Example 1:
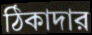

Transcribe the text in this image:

ঠিকাদার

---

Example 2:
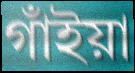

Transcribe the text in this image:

গাঁইয়া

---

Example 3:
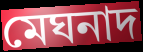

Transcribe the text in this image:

মেঘনাদ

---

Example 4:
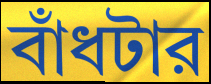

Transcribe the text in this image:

বাঁধটার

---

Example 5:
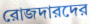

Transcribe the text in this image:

রোজদারদের